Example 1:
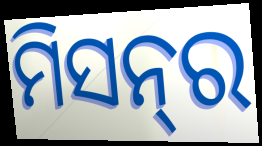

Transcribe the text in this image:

ମିସନ୍‍ର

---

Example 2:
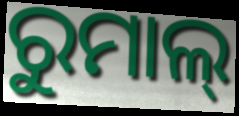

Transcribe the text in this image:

ରୁମାଲ୍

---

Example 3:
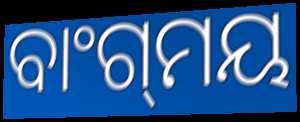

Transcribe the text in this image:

ବାଂଗ୍‌ମୟ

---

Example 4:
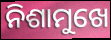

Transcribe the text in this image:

ନିଶାମୁଖେ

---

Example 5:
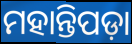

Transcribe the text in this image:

ମହାନ୍ତିପଡ଼ା